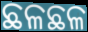
ଛଳଛଳ